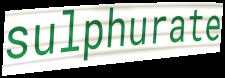
sulphurate